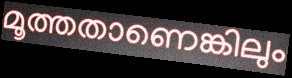
മൂത്തതാണെങ്കിലും